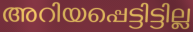
അറിയപ്പെട്ടിട്ടില്ല